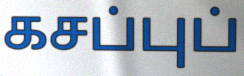
கசப்புப்